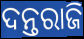
ଦନ୍ତରାଜି